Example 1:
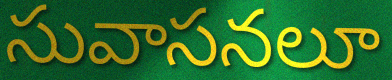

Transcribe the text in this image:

సువాసనలూ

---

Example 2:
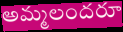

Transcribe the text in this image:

అమ్మలందరూ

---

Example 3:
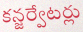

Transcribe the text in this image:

కన్జర్వేటర్లు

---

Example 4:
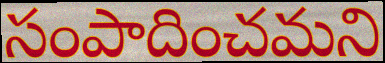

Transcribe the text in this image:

సంపాదించమని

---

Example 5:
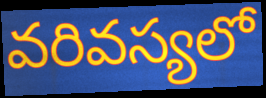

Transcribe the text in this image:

వరివస్యలో